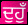
ਦੁਹੁਁ